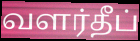
வளர்தீப்